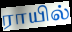
ராயில்